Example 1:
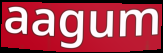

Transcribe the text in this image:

aagum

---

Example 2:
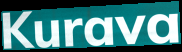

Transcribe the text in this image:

Kurava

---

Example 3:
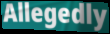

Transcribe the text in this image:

Allegedly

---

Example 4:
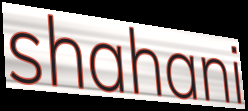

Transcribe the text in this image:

shahani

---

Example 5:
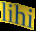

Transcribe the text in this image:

lihi